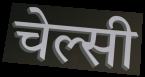
चेल्सी